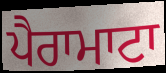
ਪੈਰਾਮਾਟਾ